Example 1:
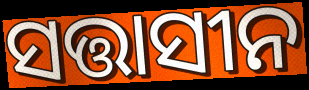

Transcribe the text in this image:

ସତ୍ତାସୀନ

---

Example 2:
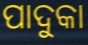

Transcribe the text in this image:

ପାଦୁକା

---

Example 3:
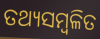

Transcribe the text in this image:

ତଥ୍ୟସମ୍ବଳିତ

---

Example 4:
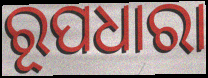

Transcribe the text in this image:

ରୂପଧାରା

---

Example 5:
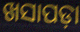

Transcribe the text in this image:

ଖସାପଡ଼ା